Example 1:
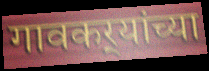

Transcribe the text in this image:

गावकर्यांच्या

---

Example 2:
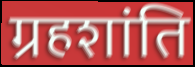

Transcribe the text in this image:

ग्रहशांति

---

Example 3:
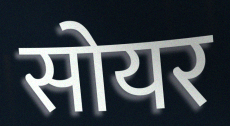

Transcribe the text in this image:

सोयर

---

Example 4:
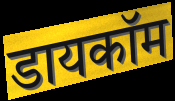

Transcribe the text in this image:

डायकॉम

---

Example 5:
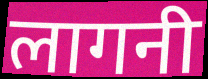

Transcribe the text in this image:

लागनी